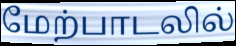
மேற்பாடலில்